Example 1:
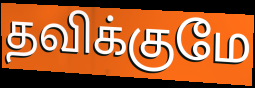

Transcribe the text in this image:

தவிக்குமே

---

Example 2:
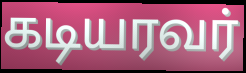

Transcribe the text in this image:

கடியரவர்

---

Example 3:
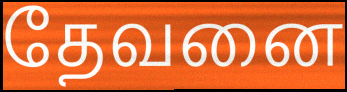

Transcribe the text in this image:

தேவனை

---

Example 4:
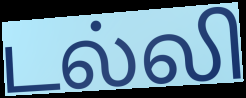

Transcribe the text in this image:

டல்லி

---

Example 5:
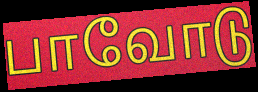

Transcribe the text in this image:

பாவோடு